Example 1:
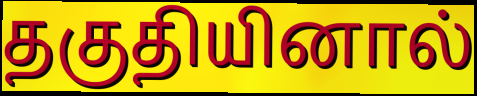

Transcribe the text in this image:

தகுதியினால்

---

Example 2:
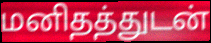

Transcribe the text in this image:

மனிதத்துடன்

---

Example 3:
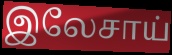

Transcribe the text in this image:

இலேசாய்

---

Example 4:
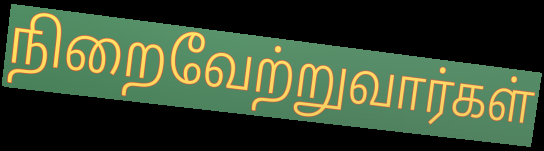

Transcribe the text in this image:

நிறைவேற்றுவார்கள்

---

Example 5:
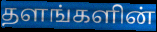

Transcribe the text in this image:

தளங்களின்